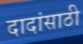
दादांसाठी